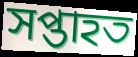
সপ্তাহত